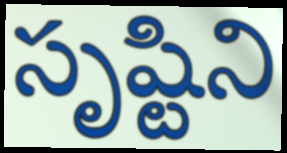
సృష్టిని